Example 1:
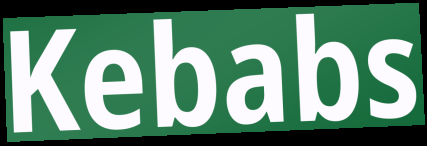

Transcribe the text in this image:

Kebabs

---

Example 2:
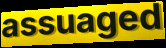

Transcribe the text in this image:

assuaged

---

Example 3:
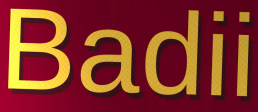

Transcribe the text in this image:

Badii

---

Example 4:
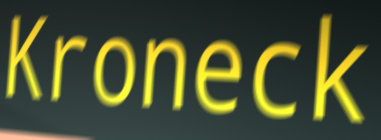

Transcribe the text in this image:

Kroneck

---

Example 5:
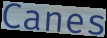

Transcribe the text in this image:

Canes